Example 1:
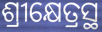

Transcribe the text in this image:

ଶ୍ରୀକ୍ଷେତ୍ରସ୍ଥ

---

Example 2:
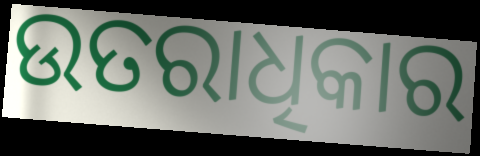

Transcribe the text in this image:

ଉତରାଧିକାର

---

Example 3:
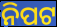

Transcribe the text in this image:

ନିପଟ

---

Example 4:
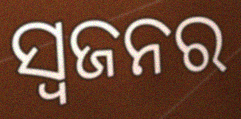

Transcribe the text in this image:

ସ୍ୱଜନର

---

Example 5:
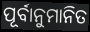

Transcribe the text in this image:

ପୂର୍ବାନୁମାନିତ